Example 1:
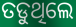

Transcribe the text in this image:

ତଡୁଥିଲେ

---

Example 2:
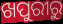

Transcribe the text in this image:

ଖପୁରୀରୁ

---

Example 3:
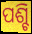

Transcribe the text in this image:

ପଶ୍ଚି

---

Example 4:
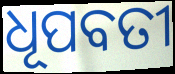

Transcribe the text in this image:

ଧୂପବତୀ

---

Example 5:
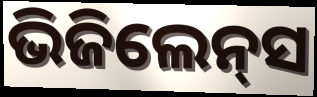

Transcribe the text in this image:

ଭିଜିଲେନ୍‌ସ